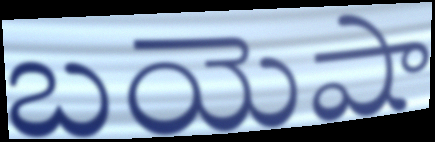
బయెషా